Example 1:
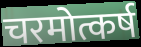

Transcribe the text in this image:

चरमोत्कर्ष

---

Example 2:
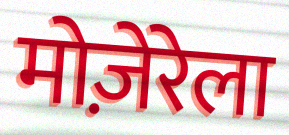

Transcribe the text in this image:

मोज़ेरेला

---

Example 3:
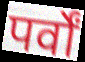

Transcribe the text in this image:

पर्वों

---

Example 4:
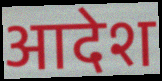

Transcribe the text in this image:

आदेश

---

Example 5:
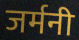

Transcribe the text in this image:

जर्मनी